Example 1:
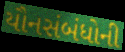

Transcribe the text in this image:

યૌનસંબંધોની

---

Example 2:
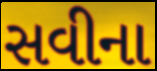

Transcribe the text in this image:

સવીના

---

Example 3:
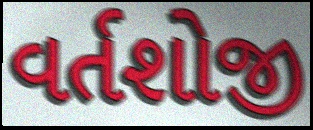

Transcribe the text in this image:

વર્તશોજી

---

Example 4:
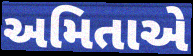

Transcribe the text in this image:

અમિતાએ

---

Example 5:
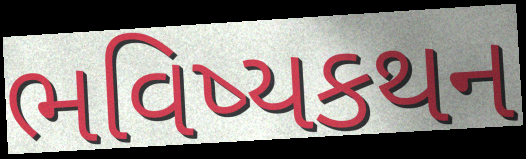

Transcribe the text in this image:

ભવિષ્યકથન